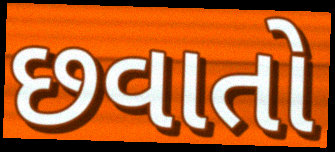
છવાતો